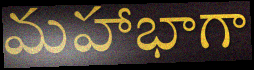
మహాభాగా